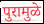
पुरामुळे